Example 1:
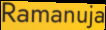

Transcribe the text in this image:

Ramanuja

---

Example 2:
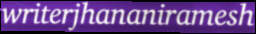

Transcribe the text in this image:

writerjhananiramesh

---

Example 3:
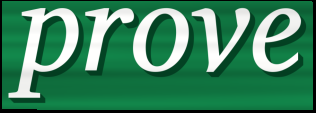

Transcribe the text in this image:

prove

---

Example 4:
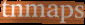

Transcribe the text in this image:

tnmaps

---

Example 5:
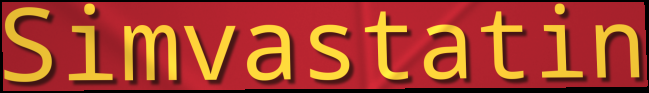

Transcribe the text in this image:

Simvastatin